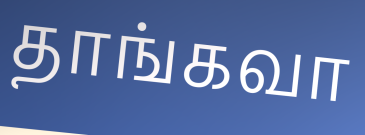
தாங்கவா